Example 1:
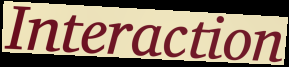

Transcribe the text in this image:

Interaction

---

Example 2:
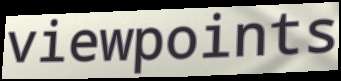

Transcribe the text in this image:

viewpoints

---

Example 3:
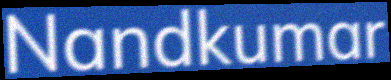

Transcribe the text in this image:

Nandkumar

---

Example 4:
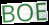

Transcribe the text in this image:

BOE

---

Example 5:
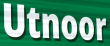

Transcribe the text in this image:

Utnoor